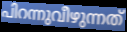
പിറന്നുവീഴുന്നത്